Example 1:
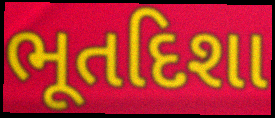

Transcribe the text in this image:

ભૂતદિશા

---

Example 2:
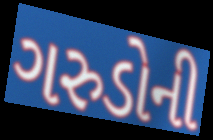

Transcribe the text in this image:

ગરુડોની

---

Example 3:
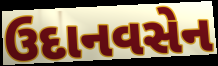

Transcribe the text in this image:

ઉદાનવસેન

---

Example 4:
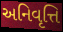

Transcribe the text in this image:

અનિવૃત્તિ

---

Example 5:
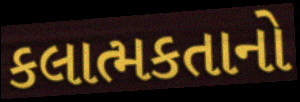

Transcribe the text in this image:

કલાત્મકતાનો